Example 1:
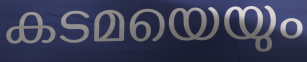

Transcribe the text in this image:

കടമയെയും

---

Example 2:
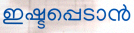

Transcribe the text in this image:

ഇഷ്ടപ്പെടാൻ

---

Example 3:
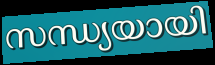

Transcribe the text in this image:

സന്ധ്യയായി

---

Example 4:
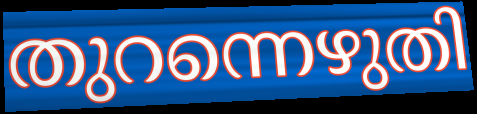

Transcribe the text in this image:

തുറന്നെഴുതി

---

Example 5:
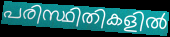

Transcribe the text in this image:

പരിസ്ഥിതികളിൽ